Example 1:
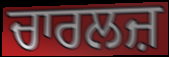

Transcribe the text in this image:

ਚਾਰਲਜ਼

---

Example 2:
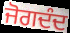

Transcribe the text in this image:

ਜੋਗਦੰਦ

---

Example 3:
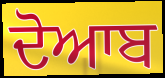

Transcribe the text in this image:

ਦੋਆਬ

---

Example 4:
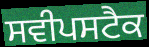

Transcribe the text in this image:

ਸਵੀਪਸਟੈਕ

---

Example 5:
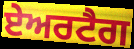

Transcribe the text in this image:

ਏਅਰਟੈਗ